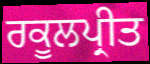
ਰਕੂਲਪ੍ਰੀਤ